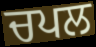
ਚਪਲ